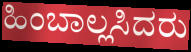
ಹಿಂಬಾಲ್ಲಸಿದರು